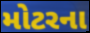
મોટરના